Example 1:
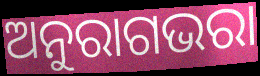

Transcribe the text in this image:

ଅନୁରାଗଭରା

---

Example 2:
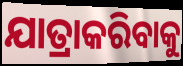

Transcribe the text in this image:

ଯାତ୍ରାକରିବାକୁ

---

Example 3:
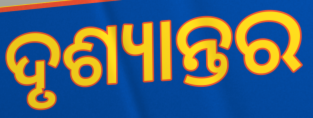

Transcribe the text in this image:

ଦୃଶ୍ୟାନ୍ତର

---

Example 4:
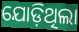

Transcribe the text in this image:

ଯୋଡ଼ିଥିଲା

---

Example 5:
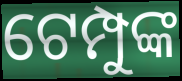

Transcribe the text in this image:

ଟେମ୍ପୁଙ୍କ